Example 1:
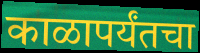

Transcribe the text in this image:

काळापर्यंतचा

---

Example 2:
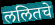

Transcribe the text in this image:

ललितचे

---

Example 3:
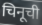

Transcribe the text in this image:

चिनूची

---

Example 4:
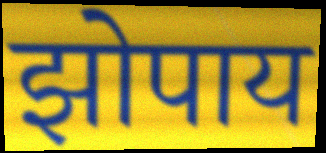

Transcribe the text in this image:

झोपाय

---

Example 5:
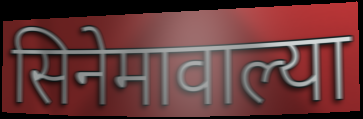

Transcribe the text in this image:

सिनेमावाल्या